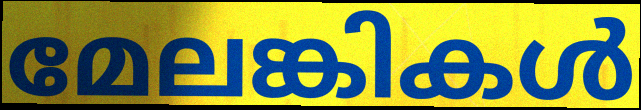
മേലങ്കികൾ